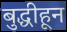
बुद्धीहून